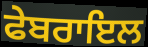
ਫੇਬਰਾਇਲ